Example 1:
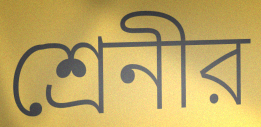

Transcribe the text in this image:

শ্রেনীর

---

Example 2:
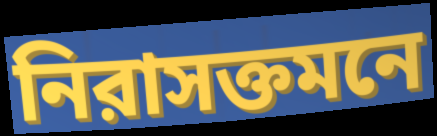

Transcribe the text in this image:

নিরাসক্তমনে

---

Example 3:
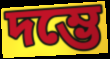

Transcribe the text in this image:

দম্ভে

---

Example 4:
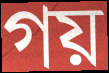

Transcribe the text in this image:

গয়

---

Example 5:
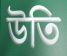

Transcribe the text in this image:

উতি